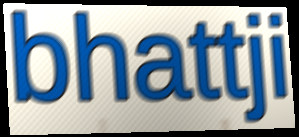
bhattji